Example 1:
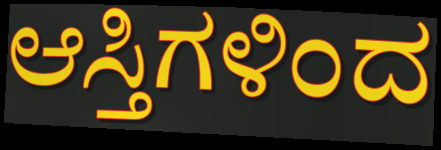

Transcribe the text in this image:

ಆಸ್ತಿಗಳಿಂದ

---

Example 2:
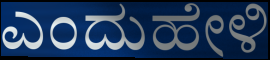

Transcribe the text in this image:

ಎಂದುಹೇಳಿ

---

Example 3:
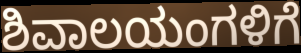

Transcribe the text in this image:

ಶಿವಾಲಯಂಗಳಿಗೆ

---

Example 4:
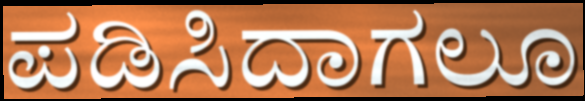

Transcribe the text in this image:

ಪಡಿಸಿದಾಗಲೂ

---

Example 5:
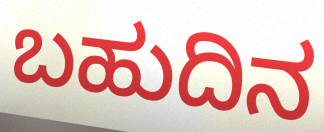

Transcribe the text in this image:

ಬಹುದಿನ